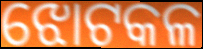
ଝୋଟକଳ